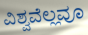
ವಿಶ್ವವೆಲ್ಲವೂ